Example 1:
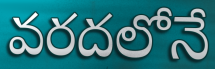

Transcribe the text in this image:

వరదలోనే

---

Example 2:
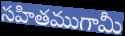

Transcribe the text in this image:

సహితముగామీ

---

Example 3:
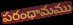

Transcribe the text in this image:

పరంధామము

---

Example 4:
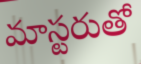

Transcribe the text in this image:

మాస్టరుతో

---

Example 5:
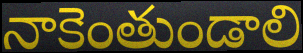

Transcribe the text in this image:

నాకెంతుండాలి